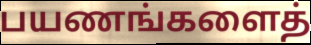
பயணங்களைத்